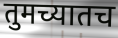
तुमच्यातच